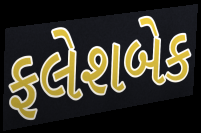
ફલેશબેક